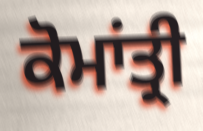
ਕੋਮਾਂਤ੍ਰੀ